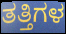
ತತ್ತಿಗಳ